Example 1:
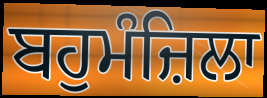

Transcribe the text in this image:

ਬਹੁਮੰਜ਼ਿਲਾ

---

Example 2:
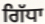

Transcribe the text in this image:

ਗਿੱਧਾ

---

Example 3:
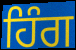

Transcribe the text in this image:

ਹਿੰਗ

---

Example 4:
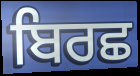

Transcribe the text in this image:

ਬਿਰਛ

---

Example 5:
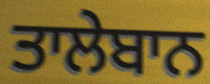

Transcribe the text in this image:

ਤਾਲੇਬਾਨ